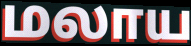
மலாய